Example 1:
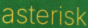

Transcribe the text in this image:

asterisk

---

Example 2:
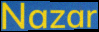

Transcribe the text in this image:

Nazar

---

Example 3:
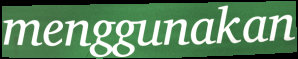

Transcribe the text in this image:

menggunakan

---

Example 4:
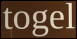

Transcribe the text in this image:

togel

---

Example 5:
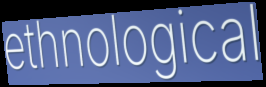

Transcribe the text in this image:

ethnological